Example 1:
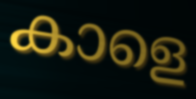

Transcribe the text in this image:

കാളെ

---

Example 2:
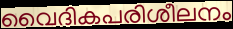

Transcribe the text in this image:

വൈദികപരിശീലനം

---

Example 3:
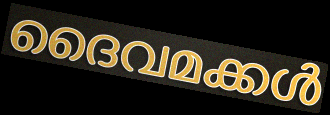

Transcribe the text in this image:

ദൈവമക്കൾ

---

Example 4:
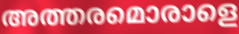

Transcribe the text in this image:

അത്തരമൊരാളെ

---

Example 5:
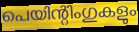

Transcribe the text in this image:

പെയിന്റിംഗുകളും